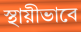
স্থায়ীভাবে